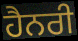
ਹੈਨਰੀ